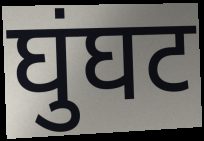
घुंघट